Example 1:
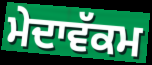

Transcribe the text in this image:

ਮੇਦਾਵੱਕਮ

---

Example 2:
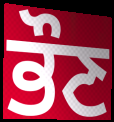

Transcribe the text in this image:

ਭੌਣ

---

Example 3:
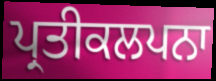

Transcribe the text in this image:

ਪ੍ਰਤੀਕਲਪਨਾ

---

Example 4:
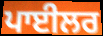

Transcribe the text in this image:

ਪਾਈਲਰ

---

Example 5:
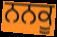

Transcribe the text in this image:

ਨਨਕੂ